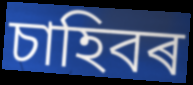
চাহিবৰ